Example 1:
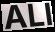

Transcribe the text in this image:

ALI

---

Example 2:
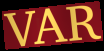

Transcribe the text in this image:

VAR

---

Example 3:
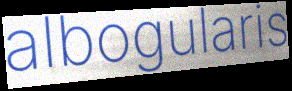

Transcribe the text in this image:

albogularis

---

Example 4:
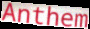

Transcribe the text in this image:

Anthem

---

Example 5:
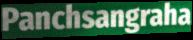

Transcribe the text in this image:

Panchsangraha